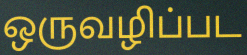
ஒருவழிப்பட